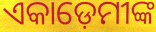
ଏକାଡ଼େମୀଙ୍କ